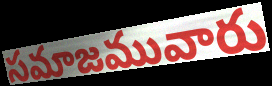
సమాజమువారు